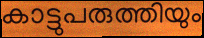
കാട്ടുപരുത്തിയും